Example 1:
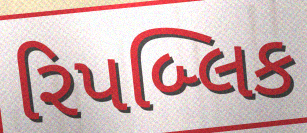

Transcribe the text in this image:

રિપબ્લિક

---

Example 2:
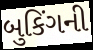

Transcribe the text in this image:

બુકિંગની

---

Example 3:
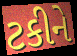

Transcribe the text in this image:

ટકીને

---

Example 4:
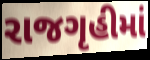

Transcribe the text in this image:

રાજગૃહીમાં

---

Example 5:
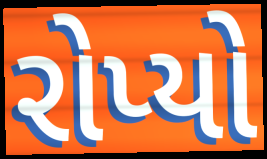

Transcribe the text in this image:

રોપ્યો